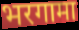
भरगामा